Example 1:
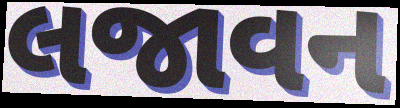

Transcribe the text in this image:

લજાવન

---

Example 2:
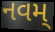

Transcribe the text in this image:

નવમ્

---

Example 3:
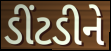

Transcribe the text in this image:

ડીંટડીને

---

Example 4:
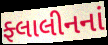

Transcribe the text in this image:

ફ્લાલીનનાં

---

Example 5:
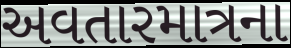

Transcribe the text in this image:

અવતારમાત્રના